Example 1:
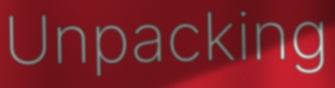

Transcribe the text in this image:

Unpacking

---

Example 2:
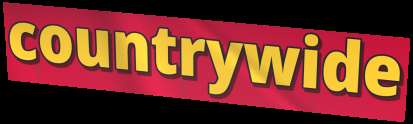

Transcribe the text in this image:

countrywide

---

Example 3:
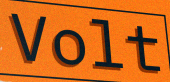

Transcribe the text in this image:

Volt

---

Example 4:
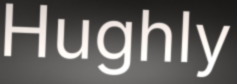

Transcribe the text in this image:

Hughly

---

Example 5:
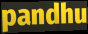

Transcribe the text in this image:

pandhu